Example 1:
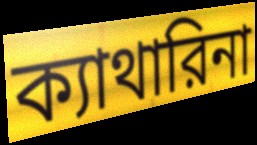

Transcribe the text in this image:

ক্যাথারিনা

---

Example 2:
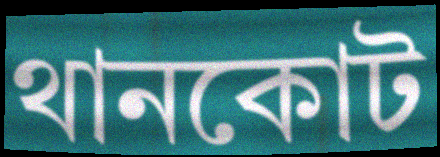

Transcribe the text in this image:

থানকোট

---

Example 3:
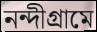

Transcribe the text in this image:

নন্দীগ্রামে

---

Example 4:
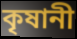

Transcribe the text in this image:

কৃষানী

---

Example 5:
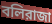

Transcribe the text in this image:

বলিরাজা